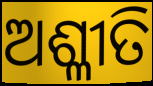
ଅଶ୍ଳୀତି